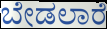
ಬೇಡಲಾರೆ